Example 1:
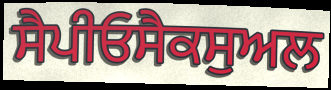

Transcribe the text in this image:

ਸੈਪੀਓਸੈਕਸੁਅਲ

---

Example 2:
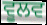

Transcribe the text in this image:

ਵੂਲਵ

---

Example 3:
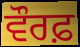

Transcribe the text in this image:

ਵੌਰਫ਼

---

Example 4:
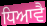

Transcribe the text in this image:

ਧਿਆਵੈ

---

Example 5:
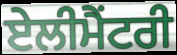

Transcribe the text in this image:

ਏਲੀਮੈਂਟਰੀ